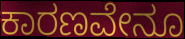
ಕಾರಣವೇನೂ